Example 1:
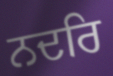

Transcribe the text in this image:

ਨਦਰਿ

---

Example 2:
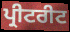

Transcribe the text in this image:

ਪ੍ਰੀਟਰੀਟ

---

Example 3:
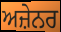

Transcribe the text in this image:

ਅਜ਼ੇਨਰ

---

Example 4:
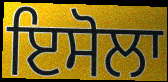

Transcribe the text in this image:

ਇਸੋਲਾ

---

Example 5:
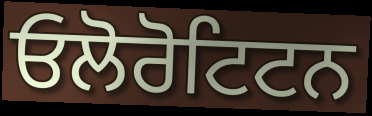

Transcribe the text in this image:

ਓਲੋਰੋਟਿਟਨ